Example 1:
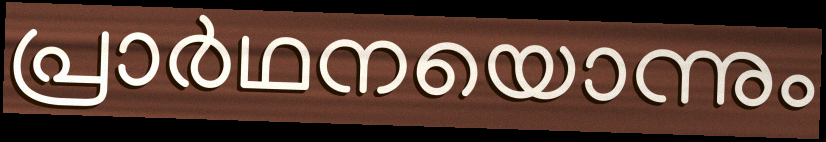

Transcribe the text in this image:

പ്രാർഥനയൊന്നും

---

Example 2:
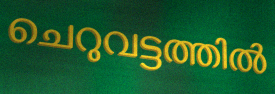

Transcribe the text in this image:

ചെറുവട്ടത്തിൽ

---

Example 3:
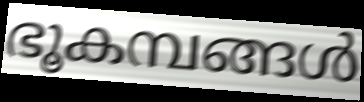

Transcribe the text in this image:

ഭൂകമ്പങ്ങൾ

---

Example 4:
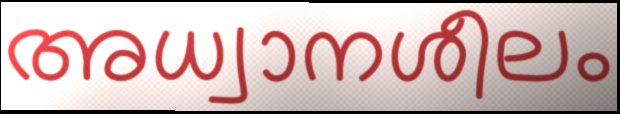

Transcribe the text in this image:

അധ്വാനശീലം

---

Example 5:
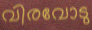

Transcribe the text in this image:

വിരവോടു